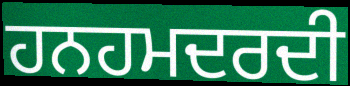
ਹਨਹਮਦਰਦੀ